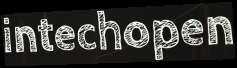
intechopen